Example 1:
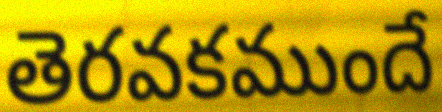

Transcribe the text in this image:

తెరవకముందే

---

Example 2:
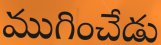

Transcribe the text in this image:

ముగించేడు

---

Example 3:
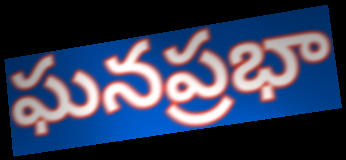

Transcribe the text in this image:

ఘనప్రభా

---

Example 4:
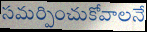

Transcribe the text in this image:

సమర్పించుకోవాలనే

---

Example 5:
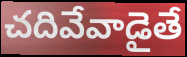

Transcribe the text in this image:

చదివేవాడైతే